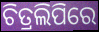
ଚିତ୍ରଲିପିରେ